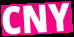
CNY